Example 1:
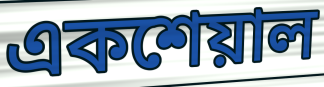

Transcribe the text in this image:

একশেয়াল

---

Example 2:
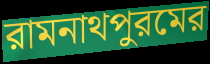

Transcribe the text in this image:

রামনাথপুরমের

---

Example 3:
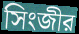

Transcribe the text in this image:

সিংজীর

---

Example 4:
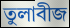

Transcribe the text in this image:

তুলাবীজ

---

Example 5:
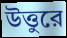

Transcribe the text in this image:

উত্তুরে